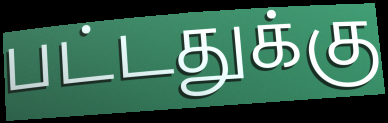
பட்டதுக்கு